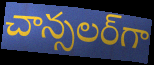
చాన్సలర్‌గా